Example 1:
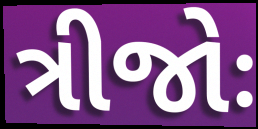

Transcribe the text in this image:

ત્રીજોઃ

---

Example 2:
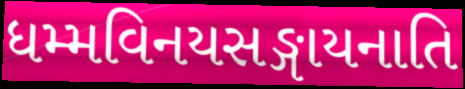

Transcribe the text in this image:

ધમ્મવિનયસઙ્ગાયનાતિ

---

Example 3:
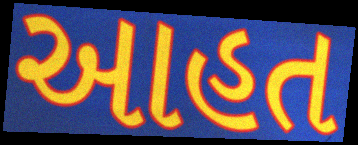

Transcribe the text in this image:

આહત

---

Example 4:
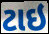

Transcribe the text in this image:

ટાઇ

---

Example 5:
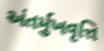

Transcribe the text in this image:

અંતર્મુખવૃત્તિ